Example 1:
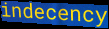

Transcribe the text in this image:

indecency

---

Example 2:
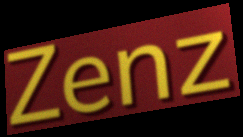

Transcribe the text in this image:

Zenz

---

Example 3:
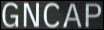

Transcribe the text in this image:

GNCAP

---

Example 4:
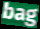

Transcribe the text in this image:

bag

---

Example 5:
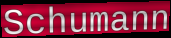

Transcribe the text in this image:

Schumann